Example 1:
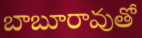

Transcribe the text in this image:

బాబూరావుతో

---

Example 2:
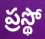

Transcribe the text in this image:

ప్రస్థో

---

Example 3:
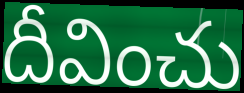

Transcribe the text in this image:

దీవించు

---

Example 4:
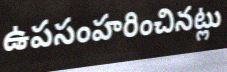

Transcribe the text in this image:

ఉపసంహరించినట్లు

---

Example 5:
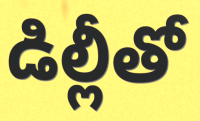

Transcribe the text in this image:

డిల్లీతో